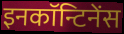
इनकॉन्टिनेंस